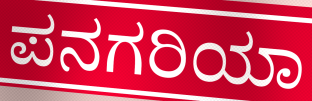
ಪನಗರಿಯಾ